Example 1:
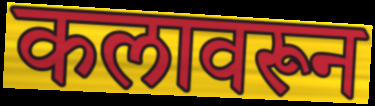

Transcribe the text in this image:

कलावरून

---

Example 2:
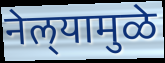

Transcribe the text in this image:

नेल्यामुळे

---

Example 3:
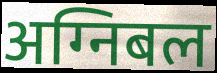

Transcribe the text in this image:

अग्निबल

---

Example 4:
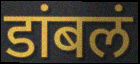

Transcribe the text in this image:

डांबलं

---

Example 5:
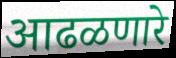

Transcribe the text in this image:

आढळणारे